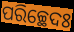
ପରିଚ୍ଛେଦଃ